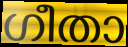
ഗീതാ